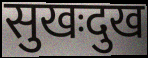
सुखःदुख